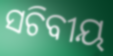
ସଚିବୀୟ